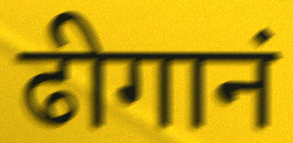
ढीगानं